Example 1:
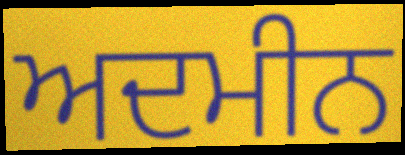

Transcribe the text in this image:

ਅਦਮੀਨ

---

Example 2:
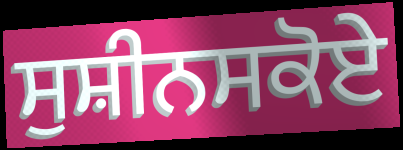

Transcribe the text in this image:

ਸੁਸ਼ੀਨਸਕੋਏ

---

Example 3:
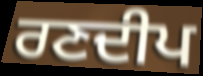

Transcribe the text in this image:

ਰਣਦੀਪ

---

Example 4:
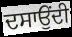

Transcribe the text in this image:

ਦਸਾਉਂਦੀ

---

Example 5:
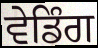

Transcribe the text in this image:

ਵੇਡਿੰਗ